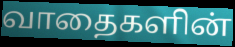
வாதைகளின்